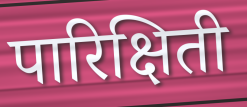
पारिक्षिती